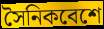
সৈনিকবেশে